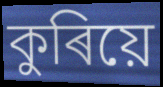
কুৰিয়ে